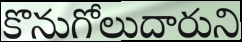
కొనుగోలుదారుని